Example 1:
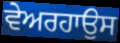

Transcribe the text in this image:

ਵੇਅਰਹਾਉਸ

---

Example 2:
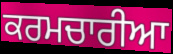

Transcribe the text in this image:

ਕਰਮਚਾਰੀਆ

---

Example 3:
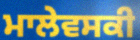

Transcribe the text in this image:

ਮਾਲੇਵਸਕੀ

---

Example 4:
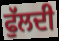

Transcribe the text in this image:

ਫੁੱਲਦੀ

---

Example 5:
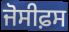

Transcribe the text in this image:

ਜੋਸੀਫ਼ਸ